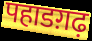
पहाडग़ढ़